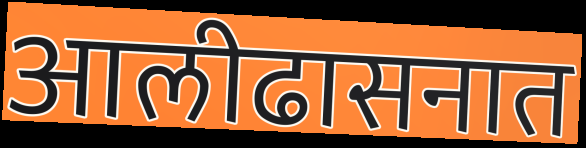
आलीढासनात